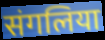
संगलिया